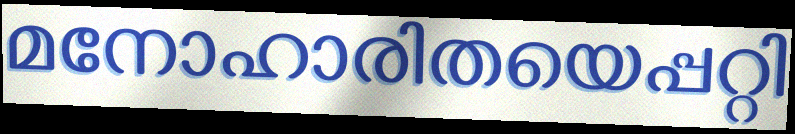
മനോഹാരിതയെപ്പറ്റി